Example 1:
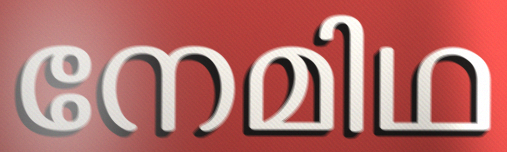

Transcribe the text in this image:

നേമിഥ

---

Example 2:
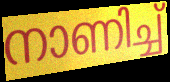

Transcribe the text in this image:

നാണിച്ച്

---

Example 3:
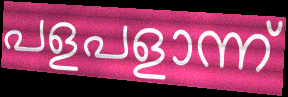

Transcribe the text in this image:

പളപളാന്ന്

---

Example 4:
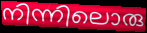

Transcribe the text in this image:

നിന്നിലൊരു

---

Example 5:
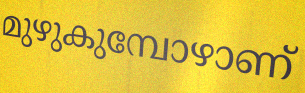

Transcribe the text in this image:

മുഴുകുമ്പോഴാണ്